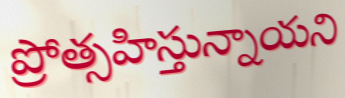
ప్రోత్సహిస్తున్నాయని